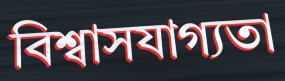
বিশ্বাসযাগ্যতা